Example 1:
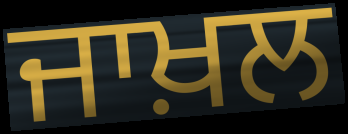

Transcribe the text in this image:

ਜਾਖ਼ਲ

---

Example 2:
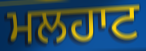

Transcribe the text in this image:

ਮਲਹਾਟ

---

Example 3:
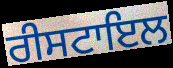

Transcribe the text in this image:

ਰੀਸਟਾਇਲ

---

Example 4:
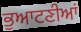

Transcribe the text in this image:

ਭੁਆਟਣੀਆਂ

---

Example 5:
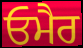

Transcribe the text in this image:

ਓਮੈਰ